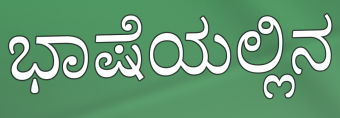
ಭಾಷೆಯಲ್ಲಿನ